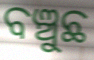
ବଞ୍ଚୁଛ